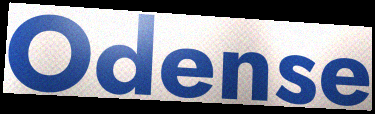
Odense